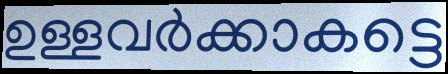
ഉള്ളവർക്കാകട്ടെ